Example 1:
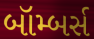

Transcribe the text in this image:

બૉમ્બર્સ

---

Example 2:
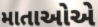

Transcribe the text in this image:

માતાઓએ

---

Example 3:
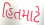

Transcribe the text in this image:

હિતમાટે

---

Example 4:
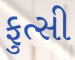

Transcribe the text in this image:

ફુત્સી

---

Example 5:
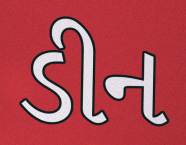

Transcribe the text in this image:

ડીન